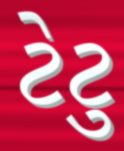
ટેટુ